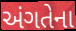
અંગતેના